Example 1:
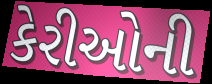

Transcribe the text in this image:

કેરીઓની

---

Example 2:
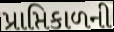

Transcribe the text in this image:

પ્રાપ્તિકાળની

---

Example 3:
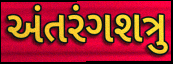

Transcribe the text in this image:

અંતરંગશત્રુ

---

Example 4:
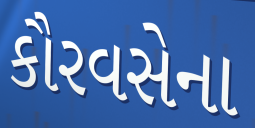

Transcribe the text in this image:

કૌરવસેના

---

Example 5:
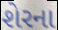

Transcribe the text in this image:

શેરના